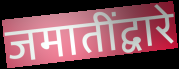
जमातींद्वारे